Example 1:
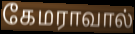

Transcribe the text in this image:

கேமராவால்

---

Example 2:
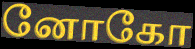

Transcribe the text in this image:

னோகோ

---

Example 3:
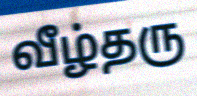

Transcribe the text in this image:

வீழ்தரு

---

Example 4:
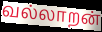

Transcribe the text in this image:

வல்லாறன்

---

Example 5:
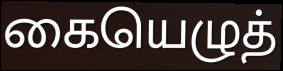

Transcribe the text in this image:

கையெழுத்